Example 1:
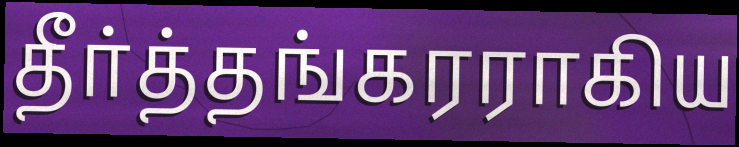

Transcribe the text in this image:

தீர்த்தங்கரராகிய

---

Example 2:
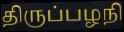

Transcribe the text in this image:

திருப்பழநி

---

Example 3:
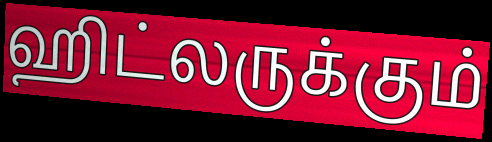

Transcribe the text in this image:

ஹிட்லருக்கும்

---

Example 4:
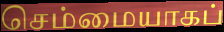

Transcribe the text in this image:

செம்மையாகப்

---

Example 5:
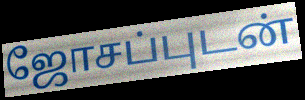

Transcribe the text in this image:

ஜோசப்புடன்